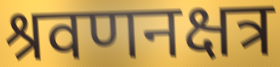
श्रवणनक्षत्र